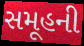
સમૂહની